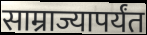
साम्राज्यापर्यंत